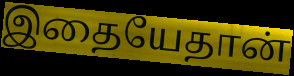
இதையேதான்